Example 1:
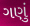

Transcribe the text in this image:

ગણું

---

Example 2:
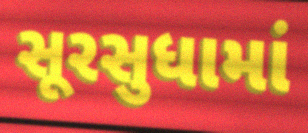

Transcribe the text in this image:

સૂરસુધામાં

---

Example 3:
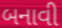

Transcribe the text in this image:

બનાવી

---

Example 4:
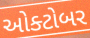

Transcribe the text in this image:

ઓક્ટોબર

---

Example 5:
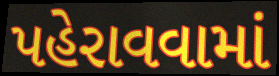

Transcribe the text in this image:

પહેરાવવામાં